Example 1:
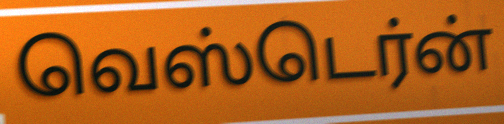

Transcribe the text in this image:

வெஸ்டெர்ன்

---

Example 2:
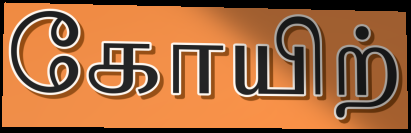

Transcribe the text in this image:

கோயிற்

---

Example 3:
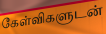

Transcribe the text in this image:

கேள்விகளுடன்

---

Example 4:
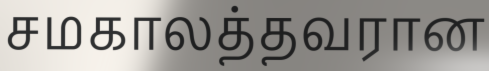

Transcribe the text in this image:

சமகாலத்தவரான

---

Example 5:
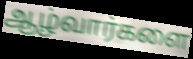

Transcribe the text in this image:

ஆழ்வார்களை